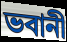
ভবানী